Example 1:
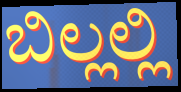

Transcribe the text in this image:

ಬಿಲ್ಲಲ್ಲಿ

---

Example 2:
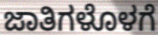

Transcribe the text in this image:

ಜಾತಿಗಳೊಳಗೆ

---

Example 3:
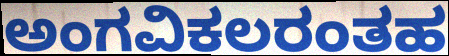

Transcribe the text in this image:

ಅಂಗವಿಕಲರಂತಹ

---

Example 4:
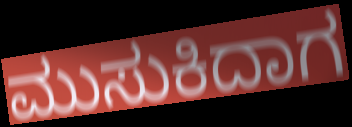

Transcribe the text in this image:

ಮುಸುಕಿದಾಗ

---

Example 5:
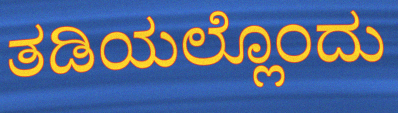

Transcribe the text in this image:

ತಡಿಯಲ್ಲೊಂದು